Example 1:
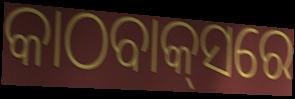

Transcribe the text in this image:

କାଠବାକ୍‍ସରେ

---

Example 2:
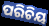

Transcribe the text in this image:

ପରିଚିୟ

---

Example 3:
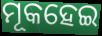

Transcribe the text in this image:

ମୂକହେଇ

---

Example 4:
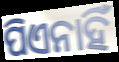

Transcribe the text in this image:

ପିଏନାହିଁ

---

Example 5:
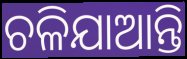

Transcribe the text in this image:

ଚଳିଯାଆନ୍ତି